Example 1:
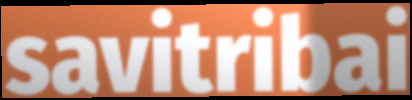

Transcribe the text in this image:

savitribai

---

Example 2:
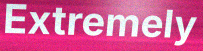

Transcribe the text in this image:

Extremely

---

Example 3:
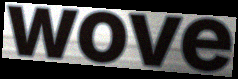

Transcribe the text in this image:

wove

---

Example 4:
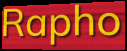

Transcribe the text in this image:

Rapho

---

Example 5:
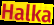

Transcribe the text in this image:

Halka